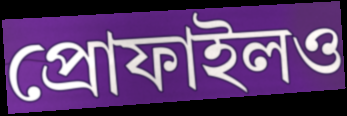
প্রোফাইলও